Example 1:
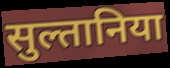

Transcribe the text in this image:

सुल्तानिया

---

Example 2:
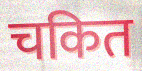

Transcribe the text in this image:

चकित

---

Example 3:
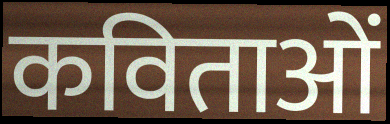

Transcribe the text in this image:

कविताओं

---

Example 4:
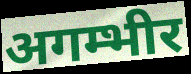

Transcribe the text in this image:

अगम्भीर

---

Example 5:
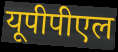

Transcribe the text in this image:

यूपीपीएल